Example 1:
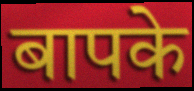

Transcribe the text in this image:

बापके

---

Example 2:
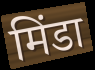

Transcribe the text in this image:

मिंडा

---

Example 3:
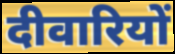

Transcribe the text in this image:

दीवारियों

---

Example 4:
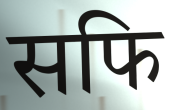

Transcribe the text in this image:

सफि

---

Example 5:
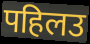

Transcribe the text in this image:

पहिलउ